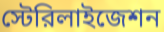
স্টেরিলাইজেশন